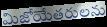
మిజోయేతరులను